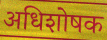
अधिशोषक